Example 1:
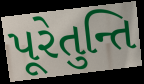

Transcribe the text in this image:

પૂરેતુન્તિ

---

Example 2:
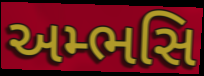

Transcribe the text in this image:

અમ્ભસિ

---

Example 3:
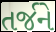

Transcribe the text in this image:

તર્જને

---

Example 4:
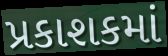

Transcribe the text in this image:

પ્રકાશકમાં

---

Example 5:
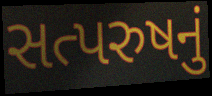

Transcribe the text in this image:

સત્પરુષનું